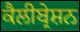
ਕੈਲੀਬ੍ਰੇਸ਼ਨ